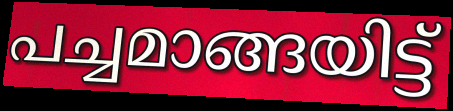
പച്ചമാങ്ങയിട്ട്